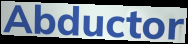
Abductor